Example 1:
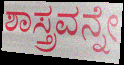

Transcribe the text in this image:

ಶಾಸ್ತ್ರವನ್ನೇ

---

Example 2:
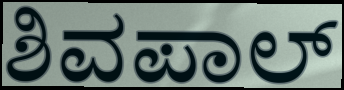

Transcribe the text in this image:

ಶಿವಪಾಲ್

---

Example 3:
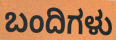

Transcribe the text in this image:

ಬಂದಿಗಳು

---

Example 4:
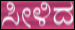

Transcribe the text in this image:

ಸೀಳಿದ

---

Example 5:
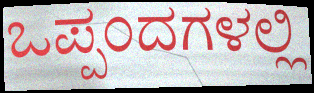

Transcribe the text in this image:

ಒಪ್ಪಂದಗಳಲ್ಲಿ